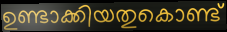
ഉണ്ടാക്കിയതുകൊണ്ട്